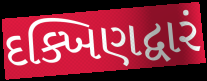
દક્ખિણદ્વારં